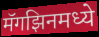
मॅगझिनमध्ये